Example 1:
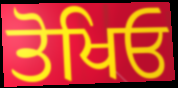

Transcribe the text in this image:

ਤੋਖਿਓ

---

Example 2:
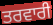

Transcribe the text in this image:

ਤਰਵਾਰੀ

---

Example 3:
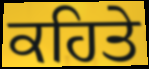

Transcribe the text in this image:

ਕਹਿਤੇ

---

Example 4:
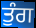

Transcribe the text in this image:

ਤੁੰਗ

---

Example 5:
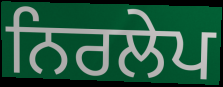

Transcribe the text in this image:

ਨਿਰਲੇਪ